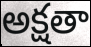
అక్షతా